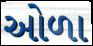
ઓળા